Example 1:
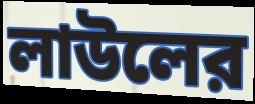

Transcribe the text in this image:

লাউলের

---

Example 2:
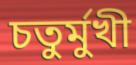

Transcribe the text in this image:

চতুর্মুখী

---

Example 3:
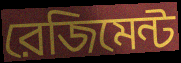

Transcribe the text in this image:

রেজিমেন্ট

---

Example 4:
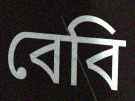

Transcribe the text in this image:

বেবি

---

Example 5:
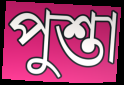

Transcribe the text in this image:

পুশ্তা